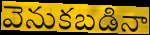
వెనుకబడినా